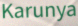
Karunya